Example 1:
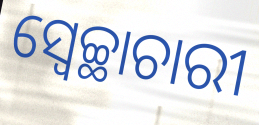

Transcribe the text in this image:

ସ୍ୱେଚ୍ଛାଚାରୀ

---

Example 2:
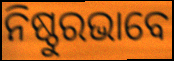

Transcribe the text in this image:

ନିଷ୍ଠୁରଭାବେ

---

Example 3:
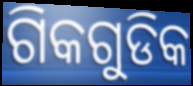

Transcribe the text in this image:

ଗିକଗୁଡିକ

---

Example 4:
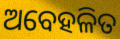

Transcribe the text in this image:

ଅବେହଳିତ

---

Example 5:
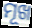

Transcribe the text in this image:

ମୂଖ